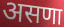
असणा